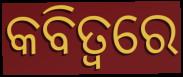
କବିତ୍ୱରେ